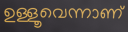
ഉള്ളൂവെന്നാണ്